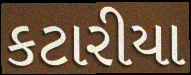
કટારીયા